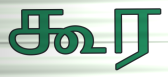
கூர